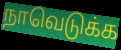
நாவெடுக்க